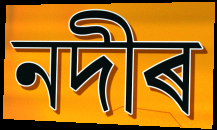
নদীৰ